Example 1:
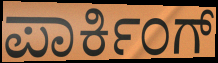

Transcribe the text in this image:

ಪಾರ್ಕಿಂಗ್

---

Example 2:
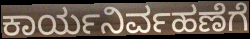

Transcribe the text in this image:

ಕಾರ್ಯನಿರ್ವಹಣೆಗೆ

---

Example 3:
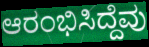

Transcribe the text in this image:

ಆರಂಭಿಸಿದ್ದೆವು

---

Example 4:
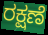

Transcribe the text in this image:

ರಕ್ಷಣೆ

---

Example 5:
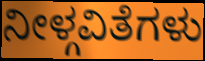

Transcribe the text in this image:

ನೀಳ್ಗವಿತೆಗಳು